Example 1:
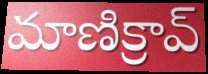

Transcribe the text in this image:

మాణిక్రావ్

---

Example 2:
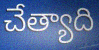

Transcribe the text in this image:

చేత్యాది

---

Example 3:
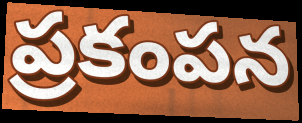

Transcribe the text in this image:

ప్రకంపన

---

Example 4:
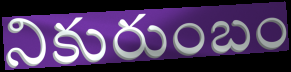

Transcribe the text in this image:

నికురుంబం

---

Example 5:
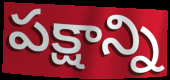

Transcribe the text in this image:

పక్షాన్ని